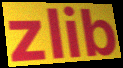
zlib